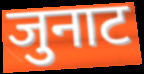
जुनाट